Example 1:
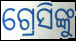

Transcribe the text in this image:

ଗ୍ରେସିଙ୍କୁ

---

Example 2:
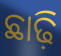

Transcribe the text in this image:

ଛାଢ଼ି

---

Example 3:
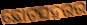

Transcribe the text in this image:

ଛୋଟସହରର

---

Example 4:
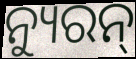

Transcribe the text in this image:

ନ୍ୟୁରନ୍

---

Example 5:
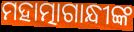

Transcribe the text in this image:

ମହାତ୍ମାଗାନ୍ଧୀଙ୍କ